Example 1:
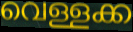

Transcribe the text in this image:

വെള്ളക്ക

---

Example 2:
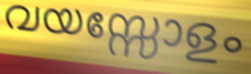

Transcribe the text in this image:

വയസ്സോളം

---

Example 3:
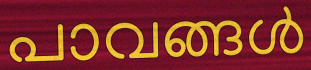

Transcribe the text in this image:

പാവങ്ങൾ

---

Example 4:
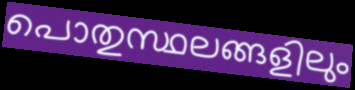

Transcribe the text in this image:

പൊതുസ്ഥലങ്ങളിലും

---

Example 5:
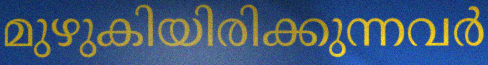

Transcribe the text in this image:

മുഴുകിയിരിക്കുന്നവർ